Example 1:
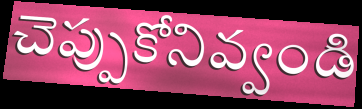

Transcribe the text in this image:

చెప్పుకోనివ్వండి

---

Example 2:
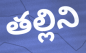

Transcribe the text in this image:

తల్లిని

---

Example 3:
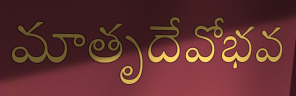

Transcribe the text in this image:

మాతృదేవోభవ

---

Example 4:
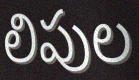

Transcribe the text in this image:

లిపుల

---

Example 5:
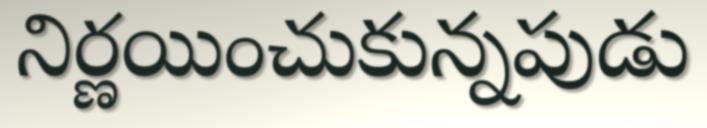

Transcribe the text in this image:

నిర్ణయించుకున్నపుడు